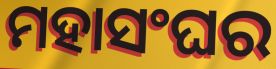
ମହାସଂଘର